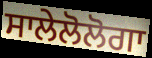
ਸਾਲੇਲੋਲੋਗਾ